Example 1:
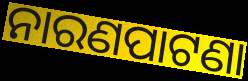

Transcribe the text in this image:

ନାରଣପାଟଣା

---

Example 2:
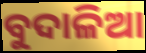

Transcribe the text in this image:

ବୁଦାଳିଆ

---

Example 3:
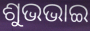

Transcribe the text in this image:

ଶୁଭଭାଇ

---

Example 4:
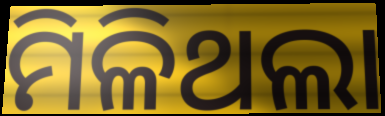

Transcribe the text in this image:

ମିଳିଥଲା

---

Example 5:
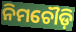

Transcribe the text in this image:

ନିମଚୌଡ଼ି